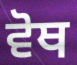
ਵੋਥ